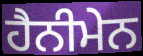
ਹੈਨੀਮੇਨ